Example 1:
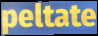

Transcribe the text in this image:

peltate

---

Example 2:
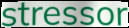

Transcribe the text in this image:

stressor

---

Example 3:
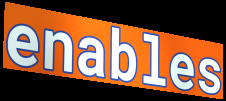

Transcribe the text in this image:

enables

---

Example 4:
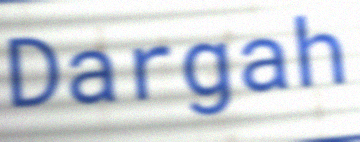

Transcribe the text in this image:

Dargah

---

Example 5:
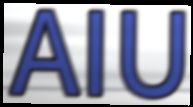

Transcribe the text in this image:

AIU